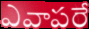
ఎవాపరే